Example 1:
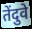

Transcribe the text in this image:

तेंदुवे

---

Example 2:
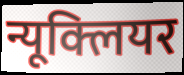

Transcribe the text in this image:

न्यूक्लियर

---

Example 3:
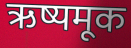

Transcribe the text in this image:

ऋष्यमूक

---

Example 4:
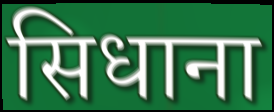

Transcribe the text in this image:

सिधाना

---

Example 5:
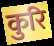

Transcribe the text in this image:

कुरि